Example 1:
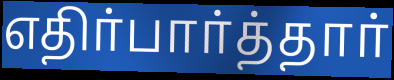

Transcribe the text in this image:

எதிர்பார்த்தார்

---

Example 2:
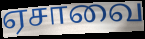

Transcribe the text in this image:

ஏசாவை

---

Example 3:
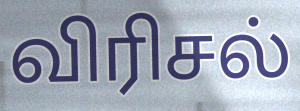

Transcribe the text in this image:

விரிசல்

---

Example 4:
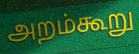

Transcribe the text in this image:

அறம்கூறு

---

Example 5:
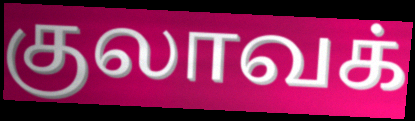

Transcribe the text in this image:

குலாவக்